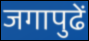
जगापुढें